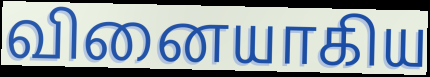
வினையாகிய